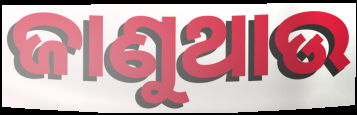
ଜାଣୁଥାଉ